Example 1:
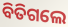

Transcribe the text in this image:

ବିତିଗଲେ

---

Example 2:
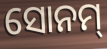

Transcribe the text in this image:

ସୋନମ୍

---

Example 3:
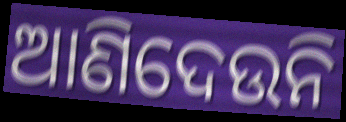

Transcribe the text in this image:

ଆଣିଦେଉନି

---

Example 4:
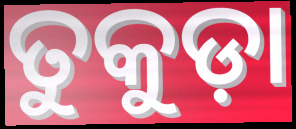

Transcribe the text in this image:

ତୁକୁଡ଼ା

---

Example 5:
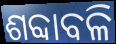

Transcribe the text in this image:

ଶବ୍ଦାବଳି